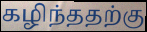
கழிந்ததற்கு